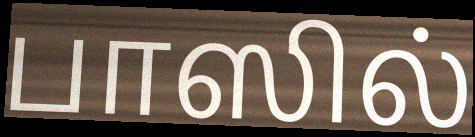
பாஸில்